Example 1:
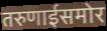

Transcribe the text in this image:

तरुणाईसमोर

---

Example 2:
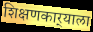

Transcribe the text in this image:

शिक्षणकार्याला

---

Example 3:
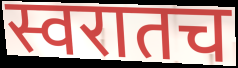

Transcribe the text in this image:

स्वरातच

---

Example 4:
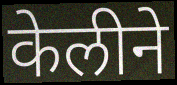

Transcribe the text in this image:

केलीने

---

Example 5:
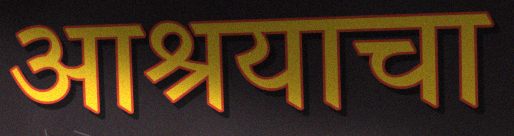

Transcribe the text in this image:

आश्रयाचा